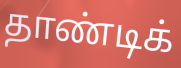
தாண்டிக்